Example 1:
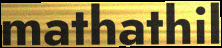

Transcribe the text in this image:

mathathil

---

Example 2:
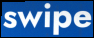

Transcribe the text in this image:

swipe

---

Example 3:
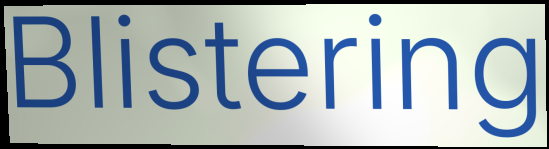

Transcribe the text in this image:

Blistering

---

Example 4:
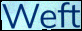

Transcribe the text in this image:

Weft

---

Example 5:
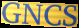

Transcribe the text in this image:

GNCS